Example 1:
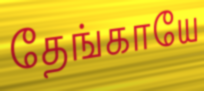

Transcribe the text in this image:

தேங்காயே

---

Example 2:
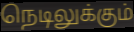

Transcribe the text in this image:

நெடிலுக்கும்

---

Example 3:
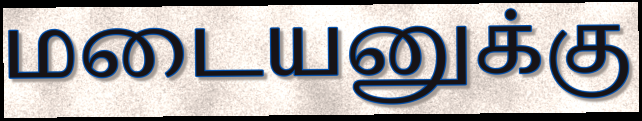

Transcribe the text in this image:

மடையனுக்கு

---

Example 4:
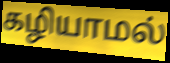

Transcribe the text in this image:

கழியாமல்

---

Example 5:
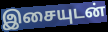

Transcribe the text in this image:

இசையுடன்